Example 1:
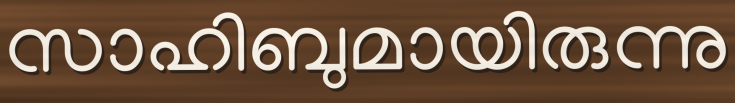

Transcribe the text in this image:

സാഹിബുമായിരുന്നു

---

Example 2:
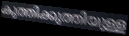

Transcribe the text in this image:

കുത്തിക്കുത്തിയുള്ള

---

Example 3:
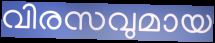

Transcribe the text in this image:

വിരസവുമായ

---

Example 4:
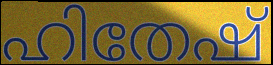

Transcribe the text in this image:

ഹിതേഷ്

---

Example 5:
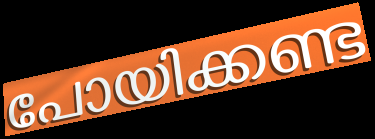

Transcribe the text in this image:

പോയിക്കണ്ട